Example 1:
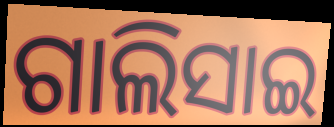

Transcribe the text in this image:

ଗାଲିସାଇ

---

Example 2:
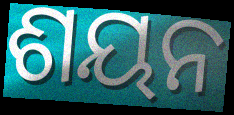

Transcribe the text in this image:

ଶୟନ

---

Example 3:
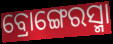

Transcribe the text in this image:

ବ୍ରୋଙ୍ଗେରସ୍ମା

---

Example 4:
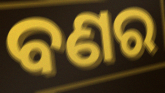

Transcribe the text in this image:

ବଣର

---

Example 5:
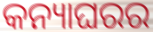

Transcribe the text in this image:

କନ୍ୟାଘରର